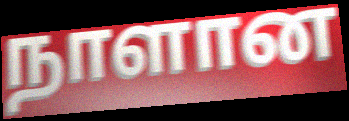
நாளான